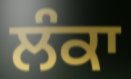
ਲੰਕਾ